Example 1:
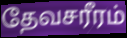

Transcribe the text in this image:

தேவசரீரம்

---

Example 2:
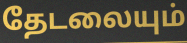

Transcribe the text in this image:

தேடலையும்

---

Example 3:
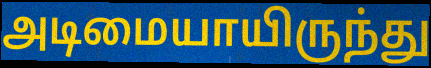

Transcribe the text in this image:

அடிமையாயிருந்து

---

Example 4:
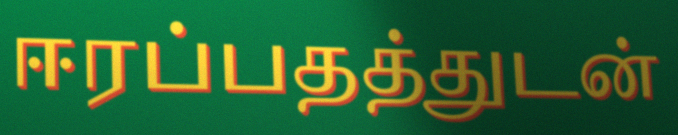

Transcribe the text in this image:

ஈரப்பதத்துடன்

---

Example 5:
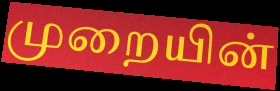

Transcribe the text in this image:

முறையின்